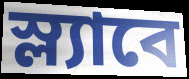
স্ল্যাবে